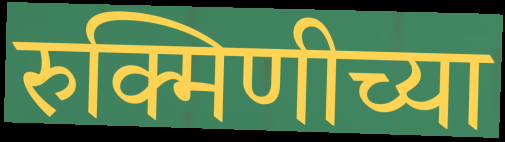
रुक्मिणीच्या